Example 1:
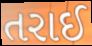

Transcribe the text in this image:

તરાઈ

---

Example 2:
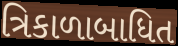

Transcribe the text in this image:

ત્રિકાળાબાધિત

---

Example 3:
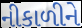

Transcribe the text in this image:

નીકાળીને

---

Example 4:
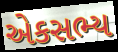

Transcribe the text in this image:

એકસભ્ય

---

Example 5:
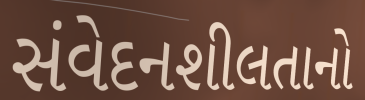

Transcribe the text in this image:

સંવેદનશીલતાનો